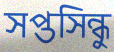
সপ্তসিন্ধু